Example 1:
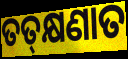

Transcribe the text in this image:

ତତ୍‍କ୍ଷଣାତ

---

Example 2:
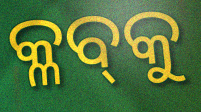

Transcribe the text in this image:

କ୍ଳବ୍‌କୁ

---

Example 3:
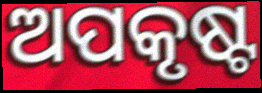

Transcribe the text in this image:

ଅପକୃଷ୍ଟ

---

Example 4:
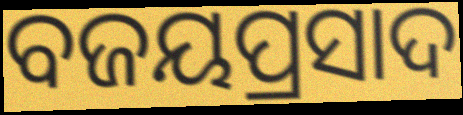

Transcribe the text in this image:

ବଜୟପ୍ରସାଦ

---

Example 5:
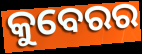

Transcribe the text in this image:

କୁବେରର